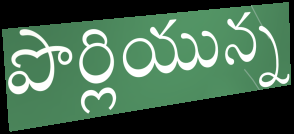
పొర్లియున్న